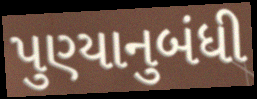
પુણ્યાનુબંધી